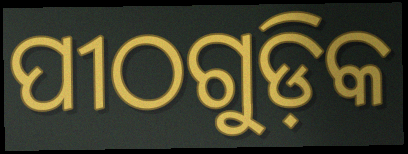
ପୀଠଗୁଡ଼ିକ